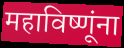
महाविष्णूंना